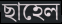
ছাহেল